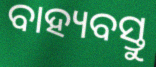
ବାହ୍ୟବସ୍ତୁ